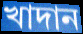
খাদান